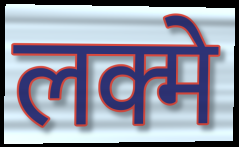
लक्मे